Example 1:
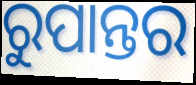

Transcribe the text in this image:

ରୁପାନ୍ତର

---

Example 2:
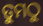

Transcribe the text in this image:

ତୁମଠୁ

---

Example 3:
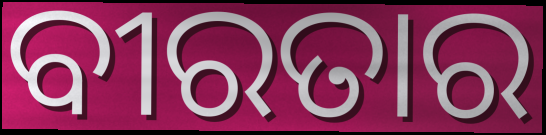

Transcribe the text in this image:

ବୀରତାର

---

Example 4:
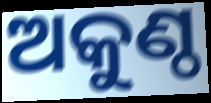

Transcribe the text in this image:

ଅକୁଣ୍ଠ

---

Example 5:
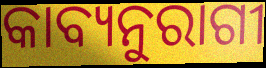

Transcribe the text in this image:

କାବ୍ୟନୁରାଗୀ